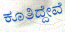
ಕೂತಿದ್ದೇವೆ